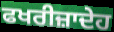
ਫਖਰੀਜ਼ਾਦੇਹ